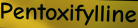
Pentoxifylline